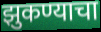
झुकण्याचा